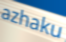
azhaku